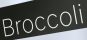
Broccoli